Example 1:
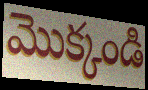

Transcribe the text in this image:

మొక్కండి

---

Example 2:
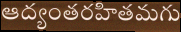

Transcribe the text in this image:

ఆద్యంతరహితమగు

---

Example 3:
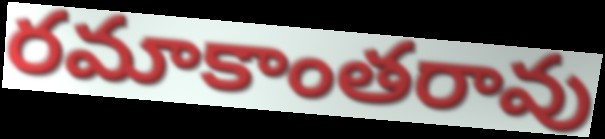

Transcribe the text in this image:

రమాకాంతరావు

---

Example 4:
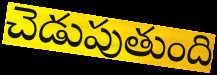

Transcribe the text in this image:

చెడుపుతుంది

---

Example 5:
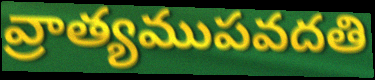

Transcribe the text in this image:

వ్రాత్యముపవదతి